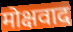
मोक्षवाद